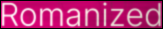
Romanized